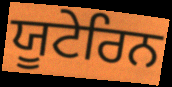
ਯੂਟੇਰਿਨ